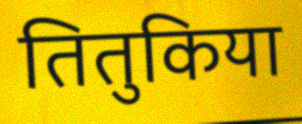
तितुकिया